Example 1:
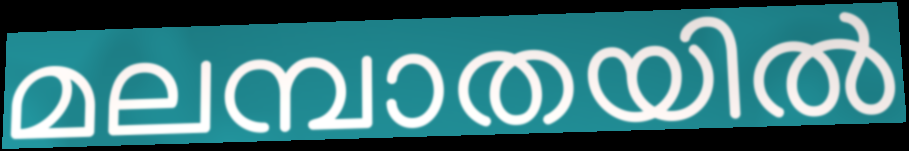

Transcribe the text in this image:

മലമ്പാതയിൽ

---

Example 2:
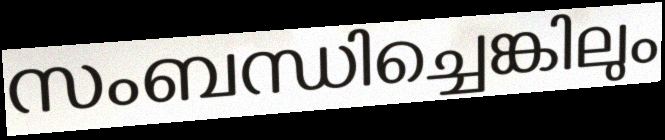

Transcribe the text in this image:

സംബന്ധിച്ചെങ്കിലും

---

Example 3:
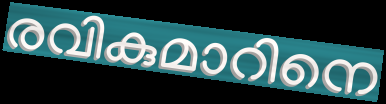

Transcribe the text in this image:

രവികുമാറിനെ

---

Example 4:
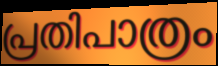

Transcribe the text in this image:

പ്രതിപാത്രം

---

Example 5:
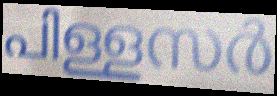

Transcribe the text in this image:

പിള്ളസർ